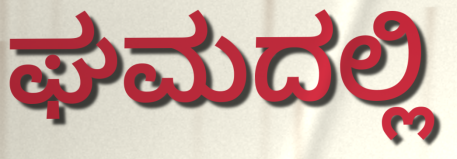
ಘಮದಲ್ಲಿ